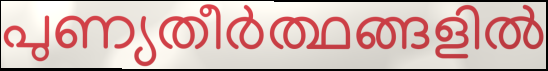
പുണ്യതീർത്ഥങ്ങളിൽ